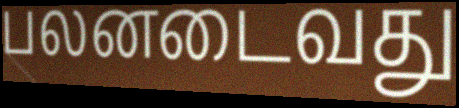
பலனடைவது